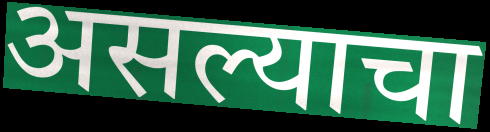
असल्‍याचा